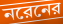
নরেনের